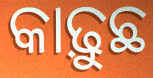
କାଢ଼ୁଛ